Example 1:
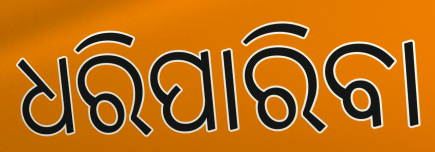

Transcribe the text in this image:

ଧରିପାରିବା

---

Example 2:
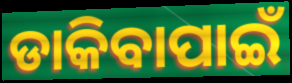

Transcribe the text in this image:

ଡାକିବାପାଇଁ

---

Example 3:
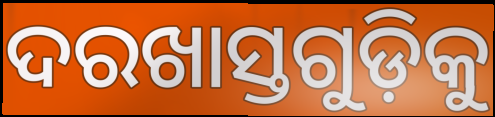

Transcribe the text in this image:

ଦରଖାସ୍ତଗୁଡ଼ିକୁ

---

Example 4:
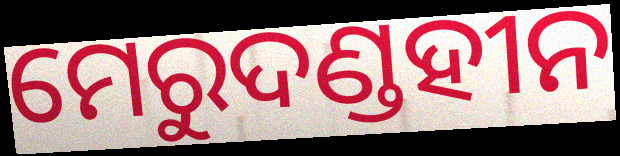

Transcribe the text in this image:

ମେରୁଦଣ୍ଡହୀନ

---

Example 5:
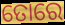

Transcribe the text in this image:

ତୋରେ